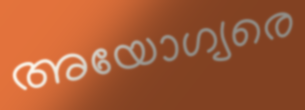
അയോഗ്യരെ